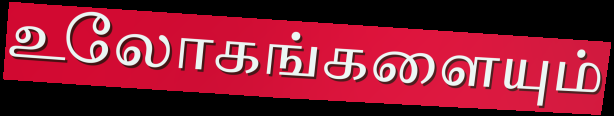
உலோகங்களையும்